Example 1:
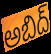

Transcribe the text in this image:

అబిద్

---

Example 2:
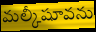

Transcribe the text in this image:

మల్కీషూవను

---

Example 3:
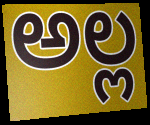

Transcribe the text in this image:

అల్ల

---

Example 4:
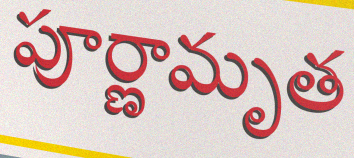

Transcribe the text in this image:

పూర్ణామృత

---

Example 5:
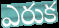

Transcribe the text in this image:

ఎరుక